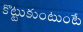
కొట్టుకుంటుంటే